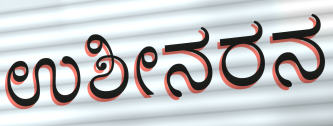
ಉಶೀನರನ